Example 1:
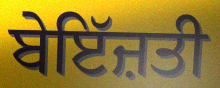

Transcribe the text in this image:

ਬੇਇੱਜ਼ਤੀ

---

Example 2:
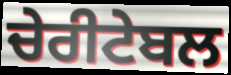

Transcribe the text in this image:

ਚੇਰੀਟੇਬਲ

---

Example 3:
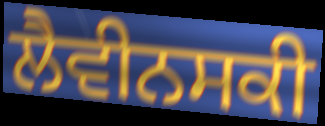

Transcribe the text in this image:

ਲੈਵੀਨਸਕੀ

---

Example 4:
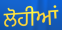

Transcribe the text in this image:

ਲੋਹੀਆਂ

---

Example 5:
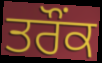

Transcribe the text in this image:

ਤਰੌਂਕ